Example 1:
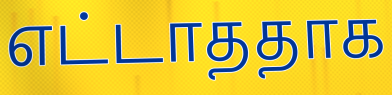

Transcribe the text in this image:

எட்டாததாக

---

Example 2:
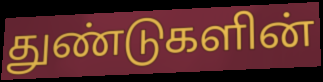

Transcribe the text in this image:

துண்டுகளின்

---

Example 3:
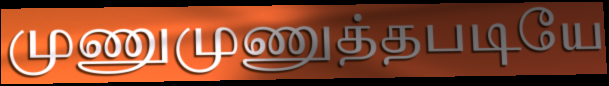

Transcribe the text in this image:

முணுமுணுத்தபடியே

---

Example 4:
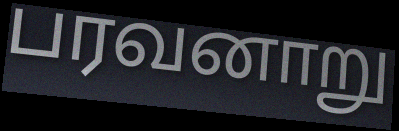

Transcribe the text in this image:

பரவனாறு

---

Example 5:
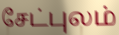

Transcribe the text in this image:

சேட்புலம்